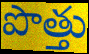
పొత్తు